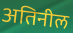
अतिनील